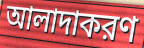
আলাদাকরণ